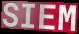
SIEM